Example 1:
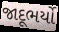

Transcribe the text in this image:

જાદૂભર્યો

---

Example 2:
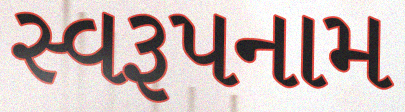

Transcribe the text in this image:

સ્વરૂપનામ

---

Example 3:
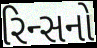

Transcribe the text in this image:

રિન્સનો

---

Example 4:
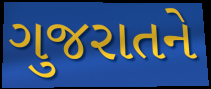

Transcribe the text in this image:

ગુજરાતને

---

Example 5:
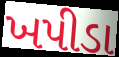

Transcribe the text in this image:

ખપીડા